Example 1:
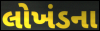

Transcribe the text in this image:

લોખંડના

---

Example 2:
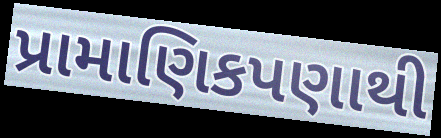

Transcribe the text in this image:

પ્રામાણિકપણાથી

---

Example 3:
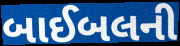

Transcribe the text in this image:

બાઈબલની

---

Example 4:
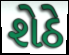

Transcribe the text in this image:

શેઠે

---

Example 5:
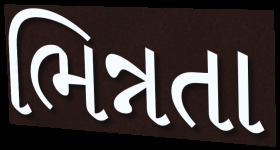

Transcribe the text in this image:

ભિન્નતા